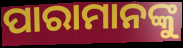
ପାରାମାନଙ୍କୁ